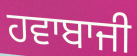
ਹਵਾਬਾਜੀ